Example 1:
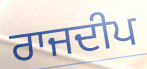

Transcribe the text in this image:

ਰਾਜਦੀਪ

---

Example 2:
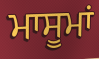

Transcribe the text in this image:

ਮਾਸੂਮਾਂ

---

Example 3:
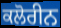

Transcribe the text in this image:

ਕਲੋਰੀਨ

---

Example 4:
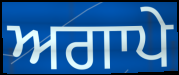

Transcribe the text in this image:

ਅਗਾਪੇ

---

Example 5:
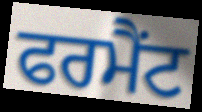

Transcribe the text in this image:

ਫਰਮੈਂਟ